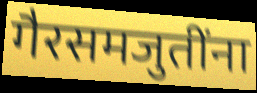
गैरसमजुतींना